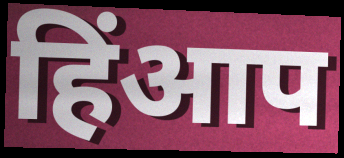
हिंआप